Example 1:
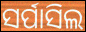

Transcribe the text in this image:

ସର୍ପାସିଲ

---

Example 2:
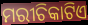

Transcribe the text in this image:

ମରୀଚିକାଟିଏ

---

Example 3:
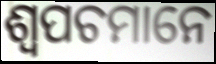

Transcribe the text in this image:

ଶ୍ୱପଚମାନେ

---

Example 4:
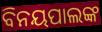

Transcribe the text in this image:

ବିନୟପାଲଙ୍କ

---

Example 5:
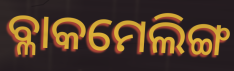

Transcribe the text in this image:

ବ୍ଳାକମେଲିଙ୍ଗ